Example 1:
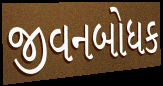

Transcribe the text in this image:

જીવનબોધક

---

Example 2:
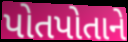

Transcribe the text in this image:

પોતપોતાને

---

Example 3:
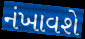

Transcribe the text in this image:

નંખાવશે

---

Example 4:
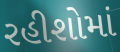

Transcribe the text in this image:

રહીશોમાં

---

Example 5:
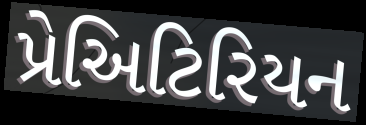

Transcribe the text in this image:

પ્રેઅિટિરિયન